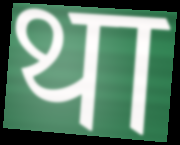
था